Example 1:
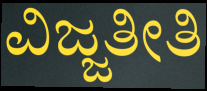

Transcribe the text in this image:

ವಿಜ್ಜತೀತಿ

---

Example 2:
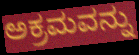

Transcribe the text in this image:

ಅಕ್ರಮವನ್ನು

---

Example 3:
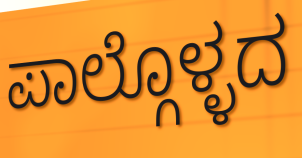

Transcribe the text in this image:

ಪಾಲ್ಗೊಳ್ಳದ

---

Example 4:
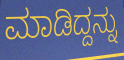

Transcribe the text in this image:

ಮಾಡಿದ್ದನ್ನು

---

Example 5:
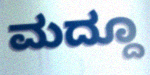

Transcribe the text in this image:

ಮದ್ದೂ